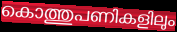
കൊത്തുപണികളിലും